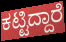
ಕಟ್ಟಿದ್ದಾರೆ